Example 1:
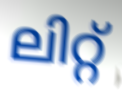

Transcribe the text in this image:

ലിറ്റ്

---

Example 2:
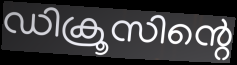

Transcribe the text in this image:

ഡിക്രൂസിന്റെ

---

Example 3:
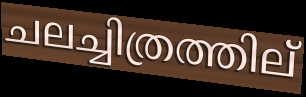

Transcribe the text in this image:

ചലച്ചിത്രത്തില്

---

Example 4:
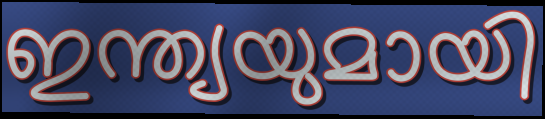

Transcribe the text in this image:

ഇന്ത്യയുമായി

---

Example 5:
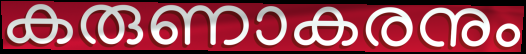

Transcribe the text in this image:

കരുണാകരനും